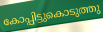
കോപ്പിട്ടുകൊടുത്തു